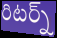
రిటర్న్